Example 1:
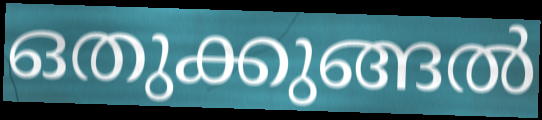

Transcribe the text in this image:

ഒതുക്കുങ്ങൽ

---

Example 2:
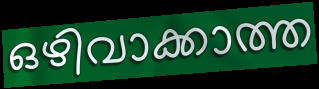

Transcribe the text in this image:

ഒഴിവാക്കാത്ത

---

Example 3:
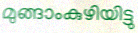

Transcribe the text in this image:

മുങ്ങാംകുഴിയിട്ടു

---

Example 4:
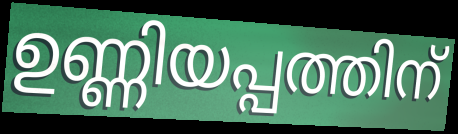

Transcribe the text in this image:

ഉണ്ണിയപ്പത്തിന്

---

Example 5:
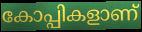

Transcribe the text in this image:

കോപ്പികളാണ്